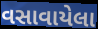
વસાવાયેલા